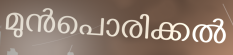
മുൻപൊരിക്കൽ